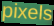
pixels